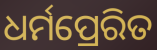
ଧର୍ମପ୍ରେରିତ